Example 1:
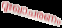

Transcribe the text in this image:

ദുഃഖാചരണം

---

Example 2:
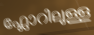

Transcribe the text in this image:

ഫ്ലോറിലുള്ള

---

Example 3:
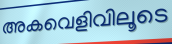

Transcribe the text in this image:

അകവെളിവിലൂടെ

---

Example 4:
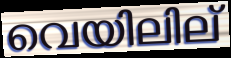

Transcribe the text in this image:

വെയിലില്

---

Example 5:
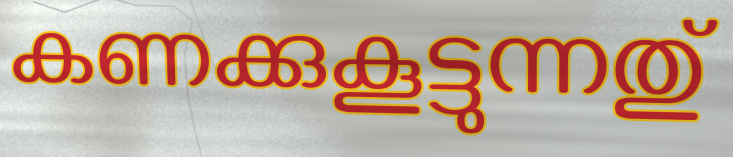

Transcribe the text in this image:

കണക്കുകൂട്ടുന്നതു്